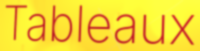
Tableaux